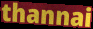
thannai